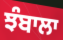
ਝੰਬਾਲਾ